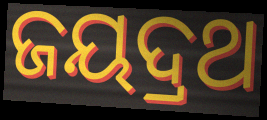
ଜୟଦ୍ରଥ